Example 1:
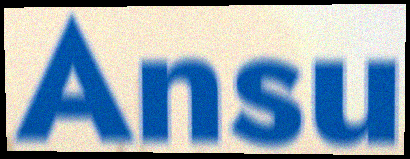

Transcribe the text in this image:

Ansu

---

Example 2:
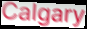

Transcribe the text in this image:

Calgary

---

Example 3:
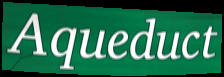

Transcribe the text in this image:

Aqueduct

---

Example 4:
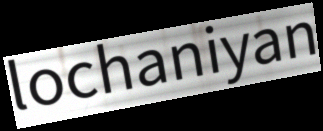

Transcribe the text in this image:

lochaniyan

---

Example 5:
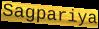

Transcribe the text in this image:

Sagpariya